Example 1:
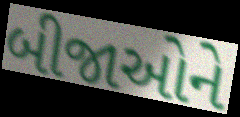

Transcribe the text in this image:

બીજાઓને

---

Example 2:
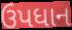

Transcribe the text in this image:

ઉપધાન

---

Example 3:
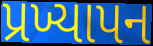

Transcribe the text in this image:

પ્રખ્યાપન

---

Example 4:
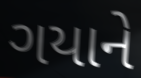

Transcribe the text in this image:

ગયાને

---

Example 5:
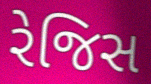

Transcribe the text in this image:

રેજિસ